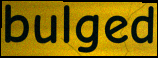
bulged